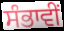
ਸੰਭਾਵੀਂ